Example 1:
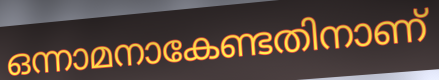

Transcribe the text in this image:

ഒന്നാമനാകേണ്ടതിനാണ്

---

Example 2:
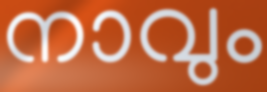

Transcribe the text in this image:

നാവും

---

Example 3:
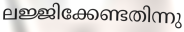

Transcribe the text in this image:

ലജ്ജിക്കേണ്ടതിന്നു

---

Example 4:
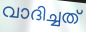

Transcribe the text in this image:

വാദിച്ചത്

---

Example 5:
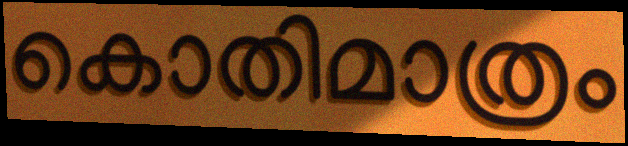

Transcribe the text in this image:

കൊതിമാത്രം